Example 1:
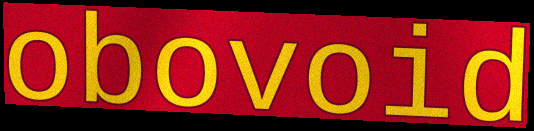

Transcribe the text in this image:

obovoid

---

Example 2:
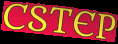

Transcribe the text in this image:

CSTEP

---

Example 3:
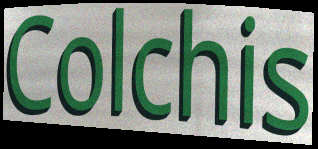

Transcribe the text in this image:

Colchis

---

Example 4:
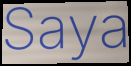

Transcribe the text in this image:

Saya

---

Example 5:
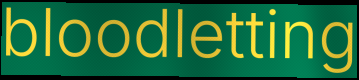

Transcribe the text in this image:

bloodletting